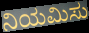
ನಿಯಮಿಸು